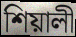
শিয়ালী